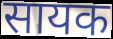
सायक